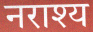
नराश्य